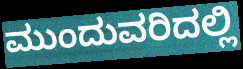
ಮುಂದುವರಿದಲ್ಲಿ